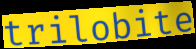
trilobite